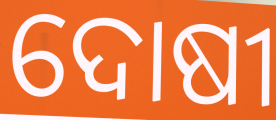
ଦୋଷୀ